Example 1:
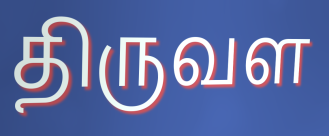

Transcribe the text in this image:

திருவள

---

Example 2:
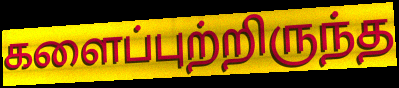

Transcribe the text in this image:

களைப்புற்றிருந்த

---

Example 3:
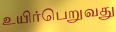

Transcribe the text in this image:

உயிர்பெறுவது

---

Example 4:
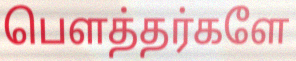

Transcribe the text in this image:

பௌத்தர்களே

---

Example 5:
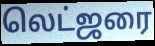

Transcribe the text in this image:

லெட்ஜரை